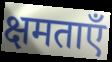
क्षमताएँ